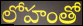
లోహంతో